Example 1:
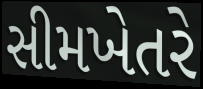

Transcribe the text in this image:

સીમખેતરે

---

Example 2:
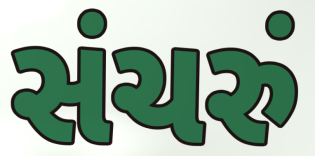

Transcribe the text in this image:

સંચરું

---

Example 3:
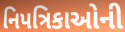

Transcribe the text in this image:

નિપત્રિકાઓની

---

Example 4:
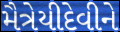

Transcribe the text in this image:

મૈત્રેયીદેવીને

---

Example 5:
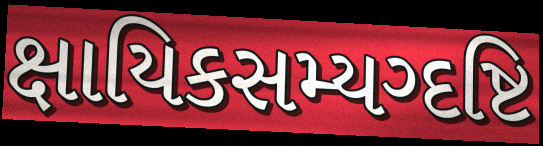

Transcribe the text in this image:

ક્ષાયિકસમ્યગ્દષ્ટિ